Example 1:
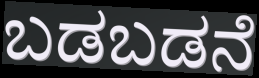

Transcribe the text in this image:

ಬಡಬಡನೆ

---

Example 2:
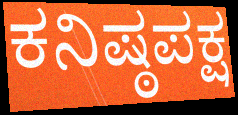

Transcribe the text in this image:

ಕನಿಷ್ಠಪಕ್ಷ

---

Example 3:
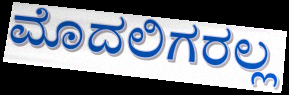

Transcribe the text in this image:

ಮೊದಲಿಗರಲ್ಲ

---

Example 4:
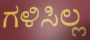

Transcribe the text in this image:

ಗಳಿಸಿಲ್ಲ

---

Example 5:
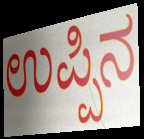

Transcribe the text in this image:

ಉಪ್ಪಿನ